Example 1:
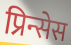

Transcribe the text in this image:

प्रिन्सेस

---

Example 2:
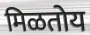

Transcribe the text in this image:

मिळतोय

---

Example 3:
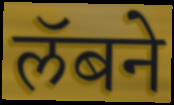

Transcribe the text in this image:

लॅबने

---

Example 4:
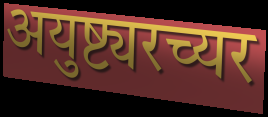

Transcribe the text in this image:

अयुष्ट्यरच्यर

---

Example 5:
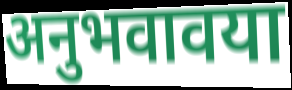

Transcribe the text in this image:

अनुभवावया